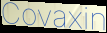
Covaxin